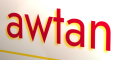
awtan